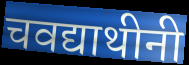
चवद्याथीनी